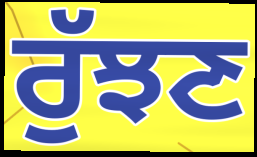
ਰੁੱਝਣ